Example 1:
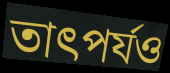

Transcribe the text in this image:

তাৎপর্যও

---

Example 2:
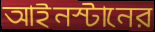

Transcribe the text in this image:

আইনস্টানের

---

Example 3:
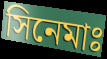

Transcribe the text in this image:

সিনেমাঃ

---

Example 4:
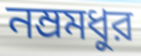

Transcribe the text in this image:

নম্রমধুর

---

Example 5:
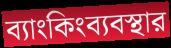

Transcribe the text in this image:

ব্যাংকিংব্যবস্থার